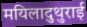
मयिलादुथुराई